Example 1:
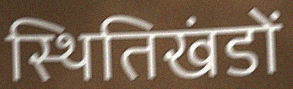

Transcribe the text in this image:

स्थितिखंडों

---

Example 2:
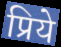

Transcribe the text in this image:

प्रिये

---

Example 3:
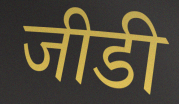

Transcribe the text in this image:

जीडी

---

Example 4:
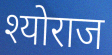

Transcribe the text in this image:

श्योराज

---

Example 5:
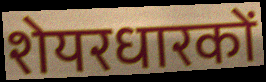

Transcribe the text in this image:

शेयरधारकों